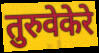
तुरुवेकेरे